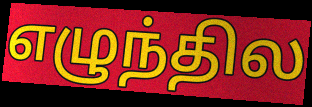
எழுந்தில